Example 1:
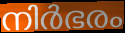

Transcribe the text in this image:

നിർഭരം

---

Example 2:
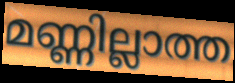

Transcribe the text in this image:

മണ്ണില്ലാത്ത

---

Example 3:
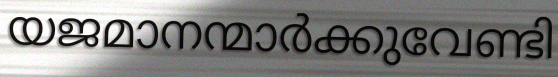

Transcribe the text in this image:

യജമാനന്മാർക്കുവേണ്ടി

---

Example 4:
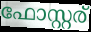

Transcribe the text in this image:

ഫോസ്റ്റര്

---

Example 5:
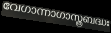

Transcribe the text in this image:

വേഗാന്നാഗാസ്ത്രബദ്ധഃ